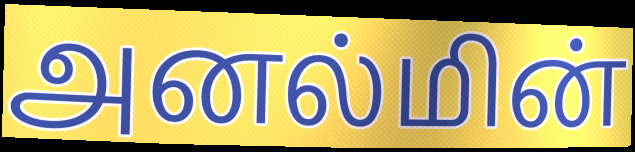
அனல்மின்